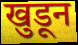
खुडून